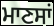
ਮਾਣਸਾਂ